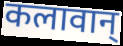
कलावान्